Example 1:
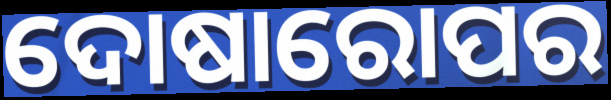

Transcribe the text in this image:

ଦୋଷାରୋପର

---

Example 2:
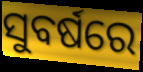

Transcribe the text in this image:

ସୁବର୍ଷରେ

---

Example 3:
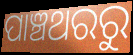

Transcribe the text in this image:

ପାଞ୍ଚଥରରୁ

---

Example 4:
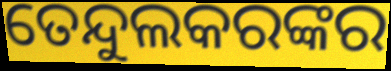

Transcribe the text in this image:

ତେନ୍ଦୁଲକରଙ୍କର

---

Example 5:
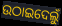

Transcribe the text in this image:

ଉଠାଇଦେଲୁଁ